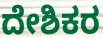
ದೇಶಿಕರ